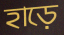
হাড়ে